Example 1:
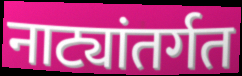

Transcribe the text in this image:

नाट्यांतर्गत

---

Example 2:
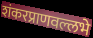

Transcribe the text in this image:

शंकरप्राणवल्लभे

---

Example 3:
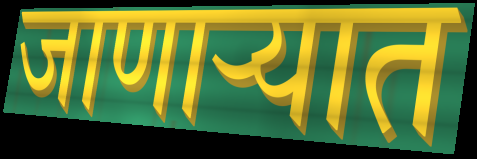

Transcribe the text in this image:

जाणाऱ्यात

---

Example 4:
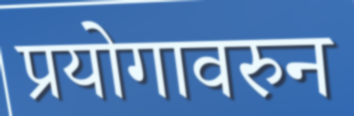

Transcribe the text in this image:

प्रयोगावरुन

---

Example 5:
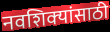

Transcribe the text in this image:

नवशिक्यांसाठी